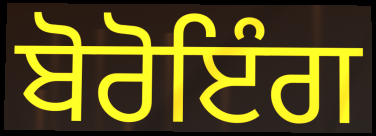
ਬੋਰੋਇੰਗ